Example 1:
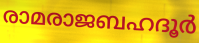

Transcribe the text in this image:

രാമരാജബഹദൂർ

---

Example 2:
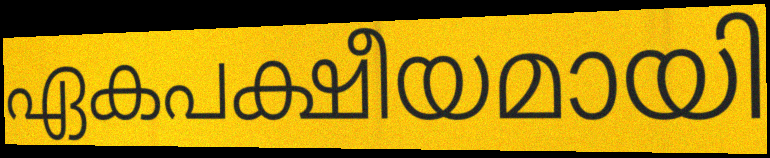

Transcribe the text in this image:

ഏകപക്ഷീയമായി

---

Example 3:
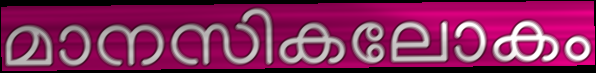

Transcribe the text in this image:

മാനസികലോകം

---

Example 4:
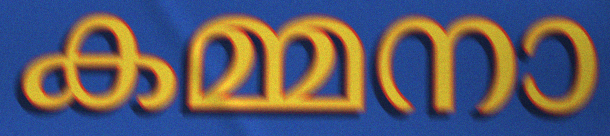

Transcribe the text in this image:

കമ്മനാ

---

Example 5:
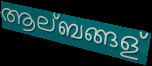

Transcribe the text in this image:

ആല്ബങ്ങള്